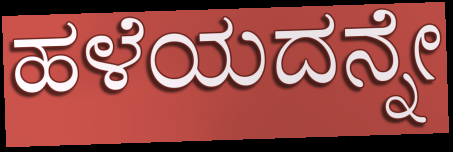
ಹಳೆಯದನ್ನೇ